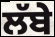
ਲੱਬੇ